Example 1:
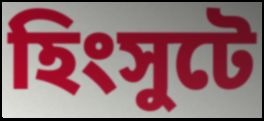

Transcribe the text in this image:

হিংসুটে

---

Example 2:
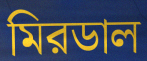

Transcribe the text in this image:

মিরডাল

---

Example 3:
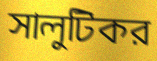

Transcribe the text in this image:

সালুটিকর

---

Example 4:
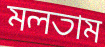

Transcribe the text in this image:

মলতাম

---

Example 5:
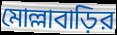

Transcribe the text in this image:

মোল্লাবাড়ির